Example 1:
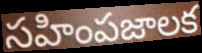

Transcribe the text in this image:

సహింపజాలక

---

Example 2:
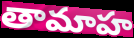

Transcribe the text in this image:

తామాహ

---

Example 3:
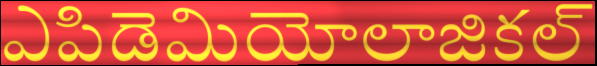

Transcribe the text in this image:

ఎపిడెమియోలాజికల్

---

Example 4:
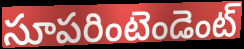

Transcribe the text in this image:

సూపరింటెండెంట్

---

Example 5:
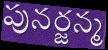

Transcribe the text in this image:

పునర్జన్మ